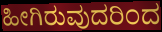
ಹೀಗಿರುವುದರಿಂದ